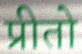
प्रीतो